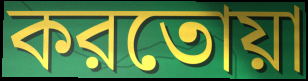
করতোয়া